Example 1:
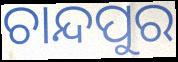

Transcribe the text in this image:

ଚାନ୍ଦପୁର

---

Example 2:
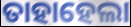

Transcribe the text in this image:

ତାହାହେଲା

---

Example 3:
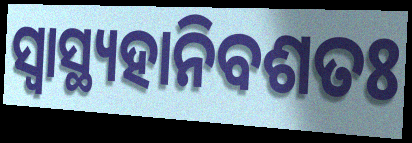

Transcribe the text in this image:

ସ୍ୱାସ୍ଥ୍ୟହାନିବଶତଃ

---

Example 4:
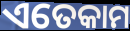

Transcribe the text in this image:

ଏତେକାମ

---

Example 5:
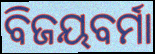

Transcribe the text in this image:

ବିଜୟବର୍ମା